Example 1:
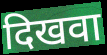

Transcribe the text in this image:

दिखवा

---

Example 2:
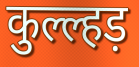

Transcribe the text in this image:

कुल्ल्हड़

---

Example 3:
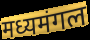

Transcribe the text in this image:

मध्यमंगल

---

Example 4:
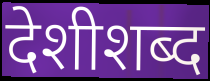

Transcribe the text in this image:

देशीशब्द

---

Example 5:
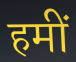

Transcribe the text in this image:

हमीं